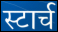
स्टार्च